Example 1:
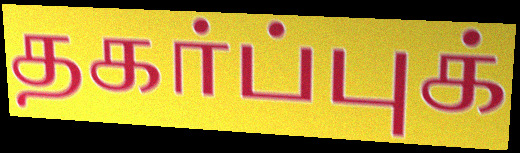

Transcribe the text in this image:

தகர்ப்புக்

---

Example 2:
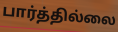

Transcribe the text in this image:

பார்த்தில்லை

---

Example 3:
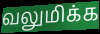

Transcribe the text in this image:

வலுமிக்க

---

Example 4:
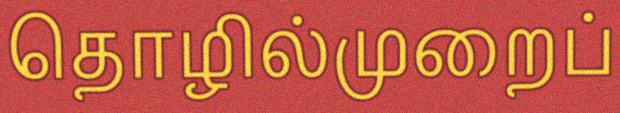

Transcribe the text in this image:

தொழில்முறைப்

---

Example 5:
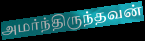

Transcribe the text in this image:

அமர்ந்திருந்தவன்